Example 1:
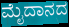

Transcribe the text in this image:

ಮೈದಾನದ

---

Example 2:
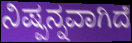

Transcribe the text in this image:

ನಿಷ್ಪನ್ನವಾಗಿದೆ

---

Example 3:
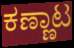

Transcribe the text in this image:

ಕಣ್ಣಾಟ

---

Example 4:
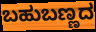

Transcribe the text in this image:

ಬಹುಬಣ್ಣದ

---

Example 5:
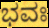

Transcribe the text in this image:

ಭವಃ